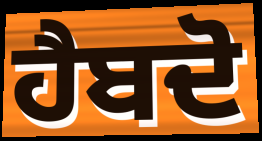
ਹੈਬਦੋ